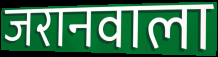
जरानवाला